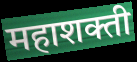
महाशक्‍ती